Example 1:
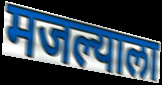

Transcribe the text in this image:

मजल्याला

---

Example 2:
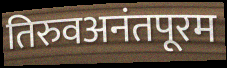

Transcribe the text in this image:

तिरुवअनंतपूरम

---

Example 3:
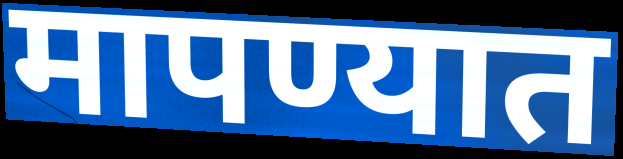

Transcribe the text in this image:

मापण्यात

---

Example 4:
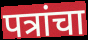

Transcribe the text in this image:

पत्रांचा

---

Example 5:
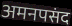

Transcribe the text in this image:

अमनपसंद